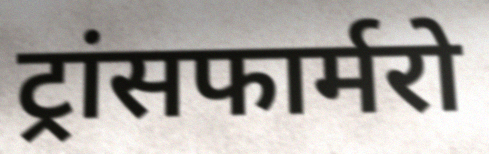
ट्रांसफार्मरो